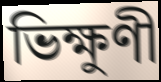
ভিক্ষুণী